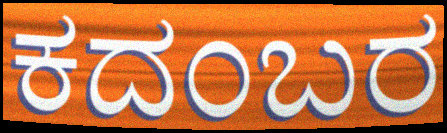
ಕದಂಬರ